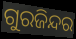
ଗୁରଜିନ୍ଦର